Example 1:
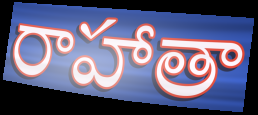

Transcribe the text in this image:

రాహాతా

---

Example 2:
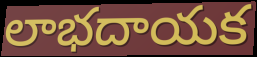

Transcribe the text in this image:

లాభదాయక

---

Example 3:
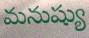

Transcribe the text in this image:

మనుష్యు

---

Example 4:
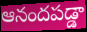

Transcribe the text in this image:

ఆనందపడ్డా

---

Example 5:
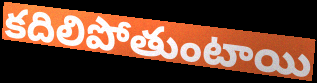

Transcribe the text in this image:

కదిలిపోతుంటాయి